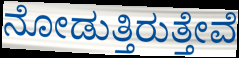
ನೋಡುತ್ತಿರುತ್ತೇವೆ